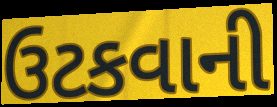
ઉટકવાની